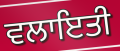
ਵਲਾਇਤੀ